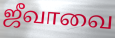
ஜீவாவை